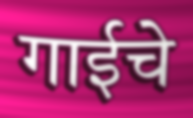
गाईचे